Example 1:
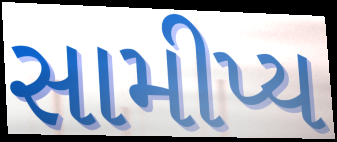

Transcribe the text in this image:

સામીપ્ય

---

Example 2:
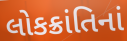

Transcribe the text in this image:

લોકક્રાંતિનાં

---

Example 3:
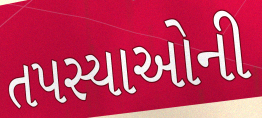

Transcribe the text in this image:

તપસ્યાઓની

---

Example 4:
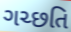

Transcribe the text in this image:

ગચ્છતિ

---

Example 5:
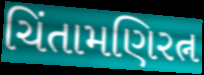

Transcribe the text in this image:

ચિંતામણિરત્ન